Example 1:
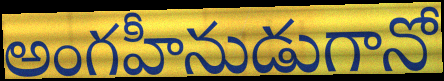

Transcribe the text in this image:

అంగహీనుడుగానో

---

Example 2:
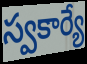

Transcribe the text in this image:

స్వకార్యే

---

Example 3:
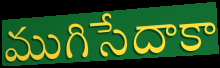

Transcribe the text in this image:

ముగిసేదాకా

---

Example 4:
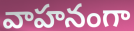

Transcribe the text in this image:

వాహనంగా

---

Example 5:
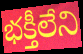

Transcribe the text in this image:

భక్తీలేని